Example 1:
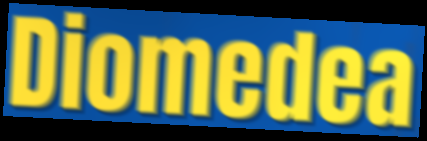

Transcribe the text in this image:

Diomedea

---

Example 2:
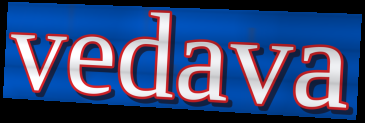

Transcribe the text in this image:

vedava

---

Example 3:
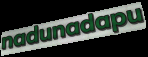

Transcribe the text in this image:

nadunadapu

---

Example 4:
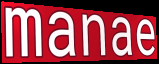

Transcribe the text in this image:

manae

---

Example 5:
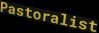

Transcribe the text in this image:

Pastoralist